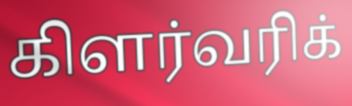
கிளர்வரிக்